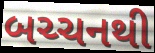
બચ્ચનથી